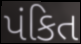
પંકિત